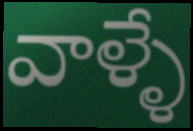
వాళ్ళే